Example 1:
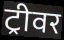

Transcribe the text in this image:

ट्रीवर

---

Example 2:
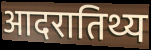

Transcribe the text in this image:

आदरातिथ्य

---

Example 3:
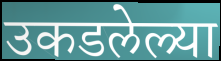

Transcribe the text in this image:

उकडलेल्या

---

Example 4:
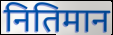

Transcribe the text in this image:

नितिमान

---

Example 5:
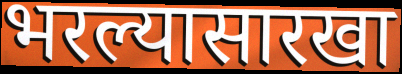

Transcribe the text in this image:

भरल्यासारखा